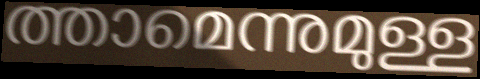
ത്താമെന്നുമുള്ള